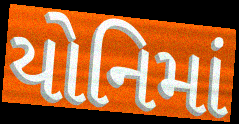
યોનિમાં